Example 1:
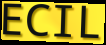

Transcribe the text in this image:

ECIL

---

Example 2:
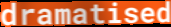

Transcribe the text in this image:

dramatised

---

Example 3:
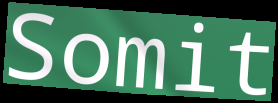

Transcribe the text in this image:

Somit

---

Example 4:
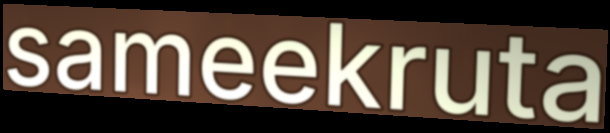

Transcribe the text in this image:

sameekruta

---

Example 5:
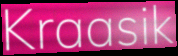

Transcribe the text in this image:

Kraasik